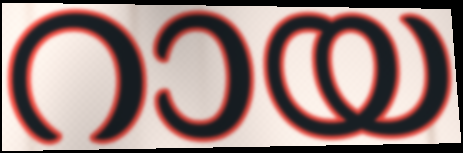
റായ